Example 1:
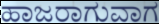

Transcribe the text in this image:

ಹಾಜರಾಗುವಾಗ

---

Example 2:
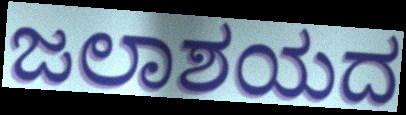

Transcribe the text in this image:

ಜಲಾಶಯದ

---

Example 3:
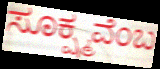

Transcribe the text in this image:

ಸೂಕ್ಷ್ಮವೆಂಬ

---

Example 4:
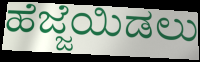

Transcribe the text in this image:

ಹೆಜ್ಜೆಯಿಡಲು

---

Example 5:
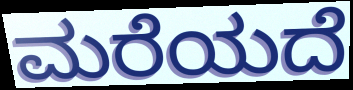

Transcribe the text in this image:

ಮರೆಯದೆ